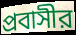
প্রবাসীর